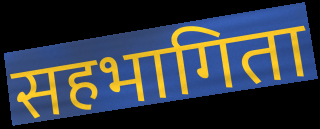
सहभागिता